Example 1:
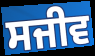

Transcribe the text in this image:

ਸਜੀਵ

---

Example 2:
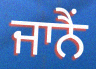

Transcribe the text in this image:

ਜਾਨੈਂ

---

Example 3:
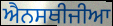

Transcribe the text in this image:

ਐਨਸਥੀਜੀਆ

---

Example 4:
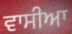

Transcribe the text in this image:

ਵਾਸੀਆ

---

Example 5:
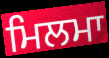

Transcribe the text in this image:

ਮਿਲਮਾ